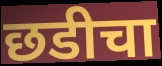
छडीचा